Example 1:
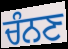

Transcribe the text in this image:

ਚੰਨਣ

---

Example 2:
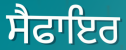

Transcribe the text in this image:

ਸੈਫਾਇਰ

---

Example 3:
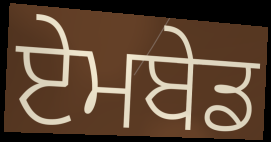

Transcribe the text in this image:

ਏਮਬੇਡ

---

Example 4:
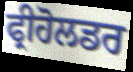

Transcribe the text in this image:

ਫ੍ਰੀਹੋਲਡਰ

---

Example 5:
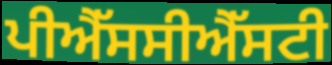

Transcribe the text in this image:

ਪੀਐੱਸਸੀਐੱਸਟੀ